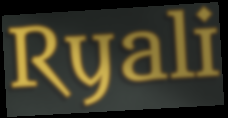
Ryali